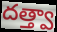
దత్త్వా